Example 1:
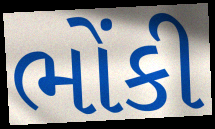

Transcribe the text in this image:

ભોંકી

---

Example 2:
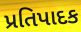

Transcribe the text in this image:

પ્રતિપાદક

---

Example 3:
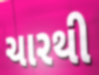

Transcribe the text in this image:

ચારથી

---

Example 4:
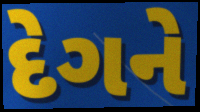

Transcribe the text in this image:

દેગને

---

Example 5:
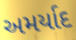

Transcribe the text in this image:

અમર્યાદ